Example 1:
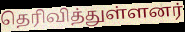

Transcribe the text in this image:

தெரிவித்துள்ளனர்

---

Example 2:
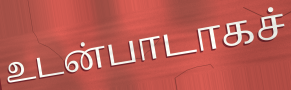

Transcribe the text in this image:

உடன்பாடாகச்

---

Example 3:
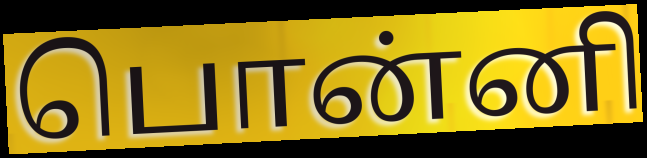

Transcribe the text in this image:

பொன்னி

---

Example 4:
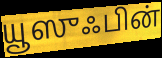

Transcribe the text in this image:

யூஸுஃபின்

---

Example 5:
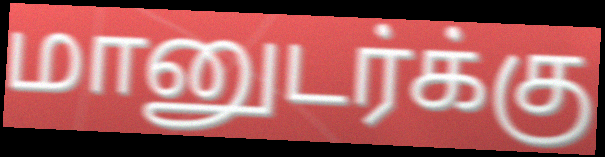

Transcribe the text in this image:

மானுடர்க்கு